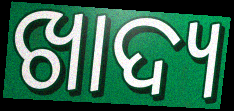
ଖାଦ୍ୟ